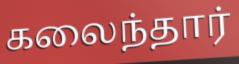
கலைந்தார்